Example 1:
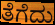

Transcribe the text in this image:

ತೆಗೆದು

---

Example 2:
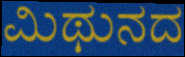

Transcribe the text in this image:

ಮಿಥುನದ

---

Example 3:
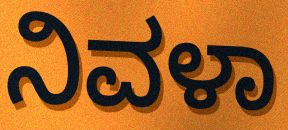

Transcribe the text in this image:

ನಿವಳಾ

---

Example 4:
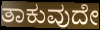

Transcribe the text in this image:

ತಾಕುವುದೇ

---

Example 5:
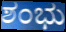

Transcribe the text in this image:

ಶಂಭು